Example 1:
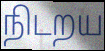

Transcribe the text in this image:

நிடறய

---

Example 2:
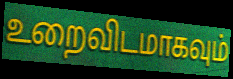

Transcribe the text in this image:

உறைவிடமாகவும்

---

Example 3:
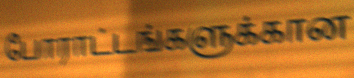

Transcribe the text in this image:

போராட்டங்களுக்கான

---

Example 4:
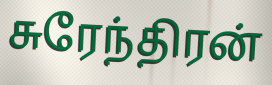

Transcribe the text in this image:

சுரேந்திரன்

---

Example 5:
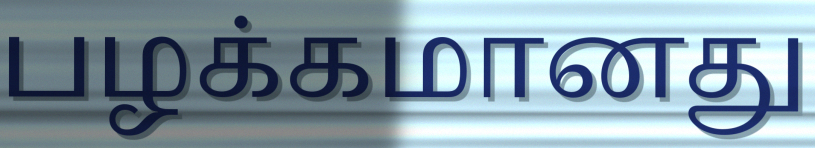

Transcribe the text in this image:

பழக்கமானது